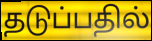
தடுப்பதில்